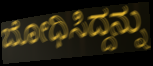
ಬೋಧಿಸಿದ್ದನ್ನು